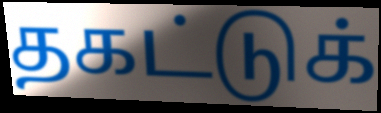
தகட்டுக்